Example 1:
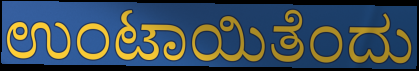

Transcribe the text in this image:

ಉಂಟಾಯಿತೆಂದು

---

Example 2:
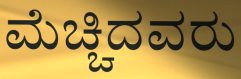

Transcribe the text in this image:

ಮೆಚ್ಚಿದವರು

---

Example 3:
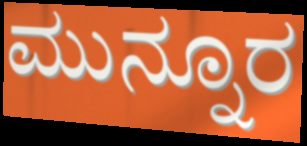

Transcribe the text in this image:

ಮುನ್ನೂರ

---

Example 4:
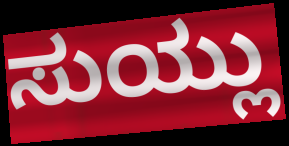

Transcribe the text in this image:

ಸುಯ್ಲು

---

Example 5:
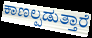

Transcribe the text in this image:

ಕಾಣಲ್ಪಡುತ್ತಾರೆ